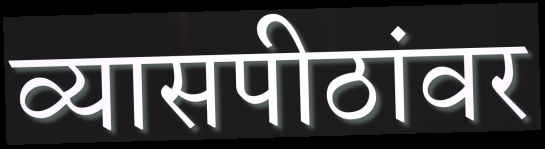
व्यासपीठांवर